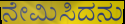
ನೇಮಿಸಿದನು